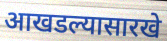
आखडल्यासारखे